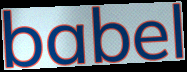
babel